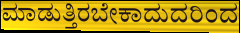
ಮಾಡುತ್ತಿರಬೇಕಾದುದರಿಂದ